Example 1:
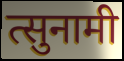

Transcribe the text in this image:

त्सुनामी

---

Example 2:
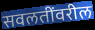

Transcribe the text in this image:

सवलतींवरील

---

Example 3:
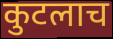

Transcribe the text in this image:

कुटलाच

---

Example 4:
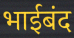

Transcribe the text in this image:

भाईबंद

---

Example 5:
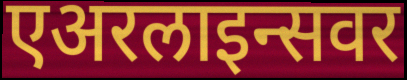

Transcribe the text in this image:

एअरलाइन्सवर